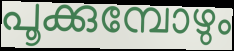
പൂക്കുമ്പോഴും